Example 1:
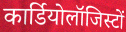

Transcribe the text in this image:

कार्डियोलॉजिस्टों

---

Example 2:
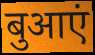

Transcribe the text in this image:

बुआएं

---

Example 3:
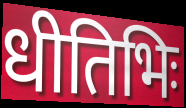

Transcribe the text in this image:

धीतिभिः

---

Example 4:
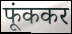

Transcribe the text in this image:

फूंककर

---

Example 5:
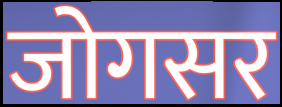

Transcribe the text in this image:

जोगसर